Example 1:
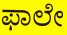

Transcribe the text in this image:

ಫಾಲೇ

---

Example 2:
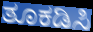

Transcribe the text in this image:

ತೂಕಡಿಸಿ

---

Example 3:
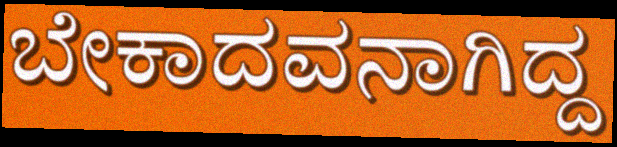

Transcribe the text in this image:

ಬೇಕಾದವನಾಗಿದ್ದ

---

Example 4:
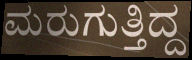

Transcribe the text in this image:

ಮರುಗುತ್ತಿದ್ದ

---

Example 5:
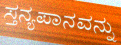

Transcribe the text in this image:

ಸ್ತನ್ಯಪಾನವನ್ನು